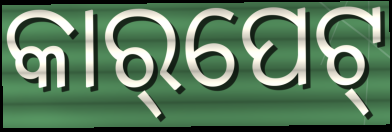
କାର୍‌ପେଟ୍